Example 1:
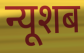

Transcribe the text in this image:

न्यूशब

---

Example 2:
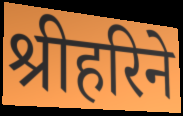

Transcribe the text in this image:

श्रीहरिने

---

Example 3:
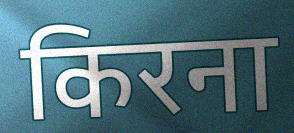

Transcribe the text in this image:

किरना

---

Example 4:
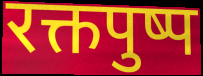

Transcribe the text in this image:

रक्तपुष्प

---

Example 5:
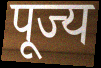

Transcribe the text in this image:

पूज्य